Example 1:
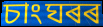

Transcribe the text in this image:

চাংঘৰৰ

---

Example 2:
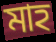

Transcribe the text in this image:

মাহ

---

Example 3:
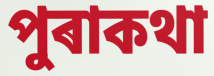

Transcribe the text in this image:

পুৰাকথা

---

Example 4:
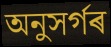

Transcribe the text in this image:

অনুসৰ্গৰ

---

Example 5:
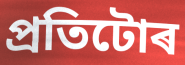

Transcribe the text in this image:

প্ৰতিটোৰ